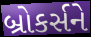
બ્રોકર્સને